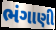
ભંગાણી